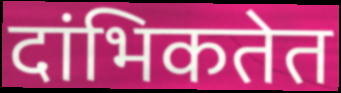
दांभिकतेत